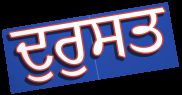
ਦੁਰੁਸਤ